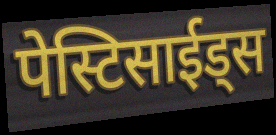
पेस्टिसाईड्स